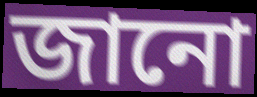
জানো